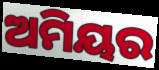
ଅମିୟର